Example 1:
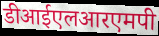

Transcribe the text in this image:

डीआईएलआरएमपी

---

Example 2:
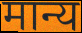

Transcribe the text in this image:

मान्य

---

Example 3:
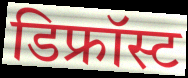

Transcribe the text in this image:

डिफ्रॉस्ट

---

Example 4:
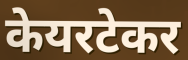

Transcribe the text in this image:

केयरटेकर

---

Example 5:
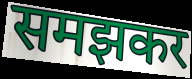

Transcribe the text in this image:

समझकर